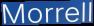
Morrell